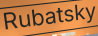
Rubatsky